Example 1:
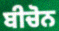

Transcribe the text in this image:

ਬੀਚੋਨ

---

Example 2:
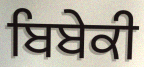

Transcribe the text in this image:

ਬਿਬੇਕੀ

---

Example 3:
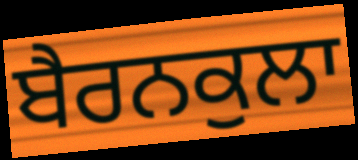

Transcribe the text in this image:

ਬੈਰਨਕੁਲਾ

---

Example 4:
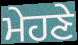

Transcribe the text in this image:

ਮੇਹਣੇ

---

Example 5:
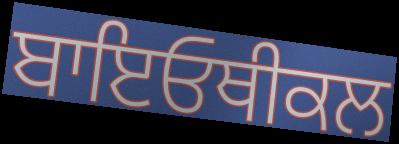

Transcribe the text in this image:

ਬਾਇਓਥੀਕਲ